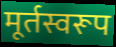
मूर्तस्वरूप